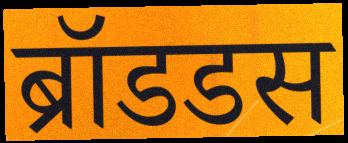
ब्रॉडडस